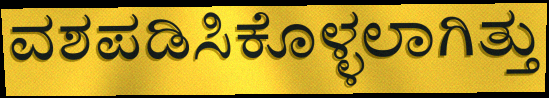
ವಶಪಡಿಸಿಕೊಳ್ಳಲಾಗಿತ್ತು